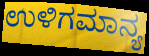
ಉಳಿಗಮಾನ್ಯ